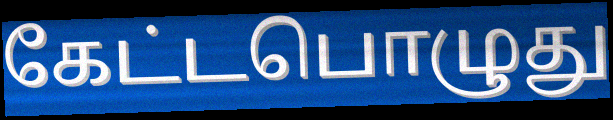
கேட்டபொழுது